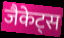
जैकेट्स